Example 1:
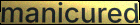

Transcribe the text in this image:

manicured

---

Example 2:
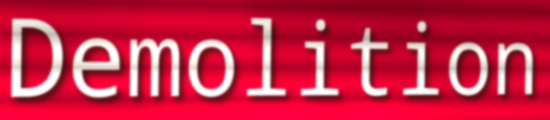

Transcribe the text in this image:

Demolition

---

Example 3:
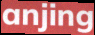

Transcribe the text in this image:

anjing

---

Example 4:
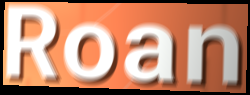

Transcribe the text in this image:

Roan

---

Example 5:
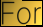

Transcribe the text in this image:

For